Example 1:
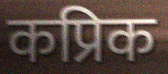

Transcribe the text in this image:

कप्रिक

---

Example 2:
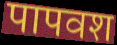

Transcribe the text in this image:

पापवश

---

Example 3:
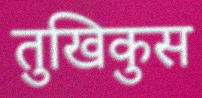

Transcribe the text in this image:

तुखिकुस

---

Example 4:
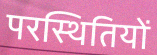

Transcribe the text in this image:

परस्थितियों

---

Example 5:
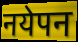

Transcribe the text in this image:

नयेपन